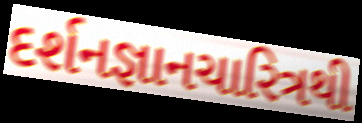
દર્શનજ્ઞાનચારિત્રથી